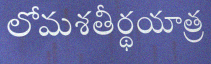
లోమశతీర్థయాత్ర